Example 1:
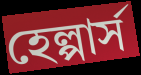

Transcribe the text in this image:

হেল্পার্স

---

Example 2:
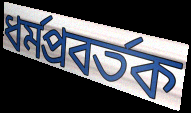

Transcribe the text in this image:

ধর্মপ্রবর্তক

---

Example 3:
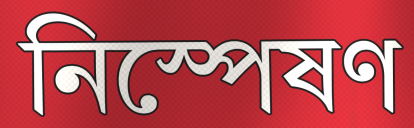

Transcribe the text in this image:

নিস্পেষণ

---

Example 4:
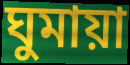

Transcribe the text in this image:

ঘুমায়া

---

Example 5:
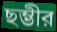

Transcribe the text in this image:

ছম্ভীর